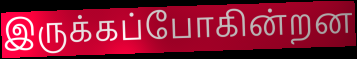
இருக்கப்போகின்றன